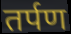
तर्पण